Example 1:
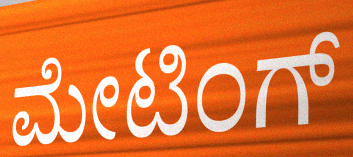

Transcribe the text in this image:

ಮೇಟಿಂಗ್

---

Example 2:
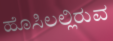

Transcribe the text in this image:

ಹೊಸಿಲಲ್ಲಿರುವ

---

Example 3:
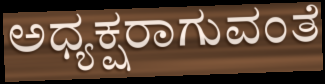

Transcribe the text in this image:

ಅಧ್ಯಕ್ಷರಾಗುವಂತೆ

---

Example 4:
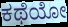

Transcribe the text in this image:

ಕಥೆಯೋ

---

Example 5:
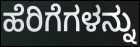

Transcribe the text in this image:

ಹೆರಿಗೆಗಳನ್ನು